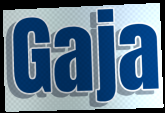
Gaja